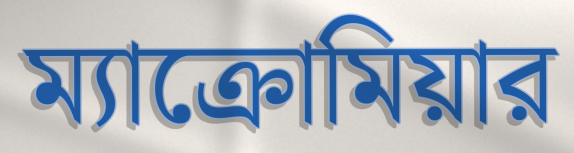
ম্যাক্রোমিয়ার